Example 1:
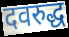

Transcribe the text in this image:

दवरुद्ध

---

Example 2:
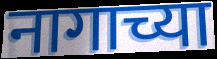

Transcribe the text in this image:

नागाच्या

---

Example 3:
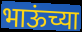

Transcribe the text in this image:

भाऊंच्या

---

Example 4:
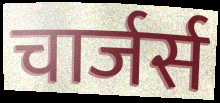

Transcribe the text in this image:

चार्जर्स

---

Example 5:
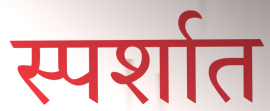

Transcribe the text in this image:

स्पर्शात